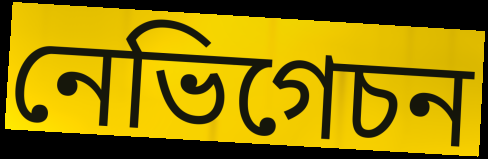
নেভিগেচন